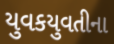
યુવકયુવતીના